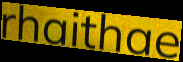
rhaithae